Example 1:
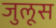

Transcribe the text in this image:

जुलूस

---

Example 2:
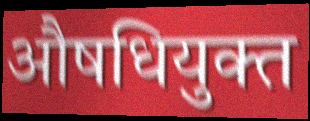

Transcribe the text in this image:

औषधियुक्त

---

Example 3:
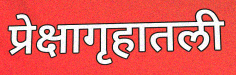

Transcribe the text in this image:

प्रेक्षागृहातली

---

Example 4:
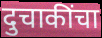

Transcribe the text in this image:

दुचाकींचा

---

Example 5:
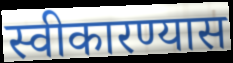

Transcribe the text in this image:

स्वीकारण्यास